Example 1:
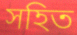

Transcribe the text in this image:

সহিত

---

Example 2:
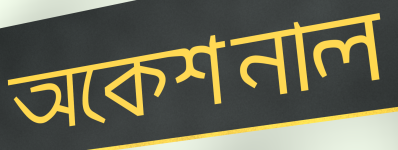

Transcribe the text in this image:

অকেশনাল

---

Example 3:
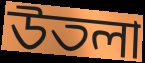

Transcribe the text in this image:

উতলা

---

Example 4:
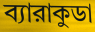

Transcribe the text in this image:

ব্যারাকুডা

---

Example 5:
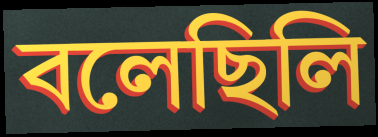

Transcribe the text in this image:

বলেছিলি